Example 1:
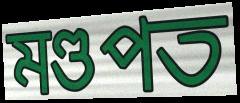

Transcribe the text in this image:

মণ্ডপত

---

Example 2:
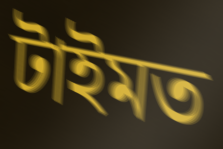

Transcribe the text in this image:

টাইমত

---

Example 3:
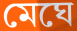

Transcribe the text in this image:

মেঘে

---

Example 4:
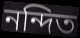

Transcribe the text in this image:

নন্দিত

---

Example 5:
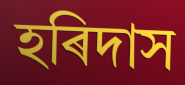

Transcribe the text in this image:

হৰিদাস